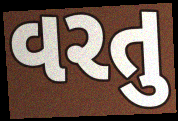
વરતુ